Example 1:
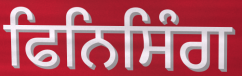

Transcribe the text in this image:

ਫਿਨਿਸਿੰਗ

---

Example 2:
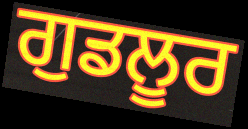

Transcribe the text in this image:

ਗੁਡਲੂਰ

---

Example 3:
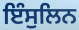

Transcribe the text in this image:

ਇੰਸੁਲਿਨ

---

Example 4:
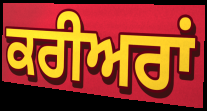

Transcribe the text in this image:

ਕਰੀਅਰਾਂ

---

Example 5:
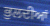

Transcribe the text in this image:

ਭੁਲਦੀਆਂ